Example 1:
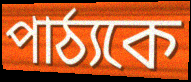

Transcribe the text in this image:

পাঠ্যকে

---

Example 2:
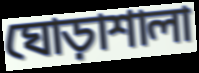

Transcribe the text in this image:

ঘোড়াশালা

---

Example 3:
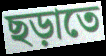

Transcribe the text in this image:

ছড়াতে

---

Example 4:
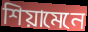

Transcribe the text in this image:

শিয়ামেনে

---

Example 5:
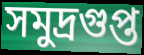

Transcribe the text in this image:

সমুদ্রগুপ্ত